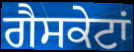
ਗੈਸਕੇਟਾਂ